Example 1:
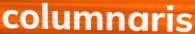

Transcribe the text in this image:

columnaris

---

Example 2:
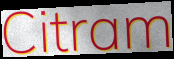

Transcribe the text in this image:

Citram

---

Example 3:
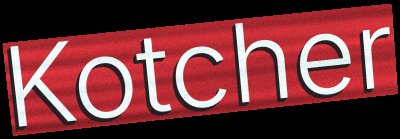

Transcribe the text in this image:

Kotcher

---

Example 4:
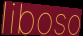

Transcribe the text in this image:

liboso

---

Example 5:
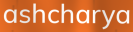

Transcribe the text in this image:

ashcharya